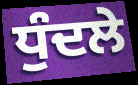
ਧੁੰਦਲੇ